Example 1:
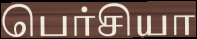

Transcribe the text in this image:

பெர்சியா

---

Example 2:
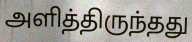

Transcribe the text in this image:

அளித்திருந்தது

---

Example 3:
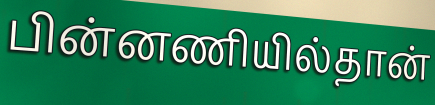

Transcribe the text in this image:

பின்னணியில்தான்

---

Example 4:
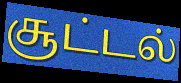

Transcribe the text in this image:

சூட்டல்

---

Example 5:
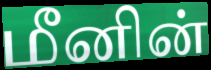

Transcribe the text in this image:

மீனின்